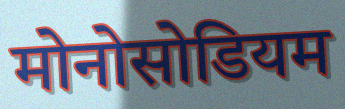
मोनोसोडियम